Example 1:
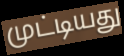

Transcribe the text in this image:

முட்டியது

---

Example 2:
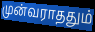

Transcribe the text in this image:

முன்வராததும்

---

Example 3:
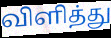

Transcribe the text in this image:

விளித்து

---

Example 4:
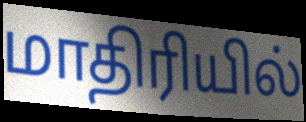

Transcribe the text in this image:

மாதிரியில்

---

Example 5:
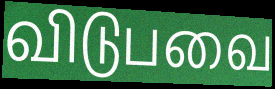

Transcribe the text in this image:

விடுபவை